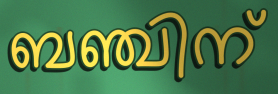
ബഞ്ചിന്